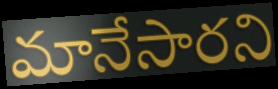
మానేసారని